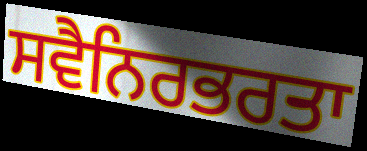
ਸਵੈਨਿਰਭਰਤਾ